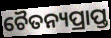
ଚୈତନ୍ୟପ୍ରାପ୍ତ